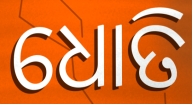
ଧୋତି